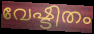
വേഷ്ടിതം